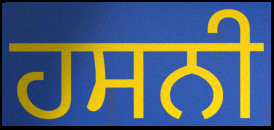
ਹਸਨੀ